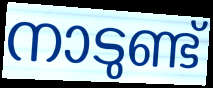
നാടുണ്ട്